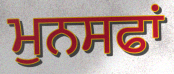
ਮੁਨਸਫਾਂ